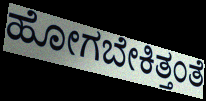
ಹೋಗಬೇಕಿತ್ತಂತೆ